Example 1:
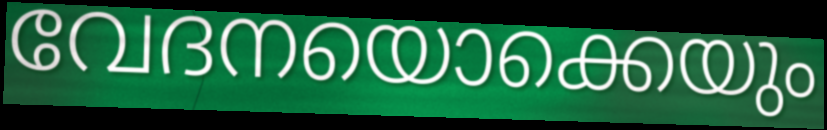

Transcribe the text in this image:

വേദനയൊക്കെയും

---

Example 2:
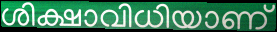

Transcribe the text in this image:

ശിക്ഷാവിധിയാണ്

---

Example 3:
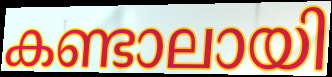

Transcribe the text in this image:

കണ്ടാലായി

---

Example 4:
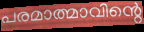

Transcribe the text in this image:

പരമാത്മാവിന്റെ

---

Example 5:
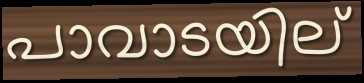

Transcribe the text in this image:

പാവാടയില്